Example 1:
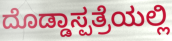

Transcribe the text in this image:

ದೊಡ್ಡಾಸ್ಪತ್ರೆಯಲ್ಲಿ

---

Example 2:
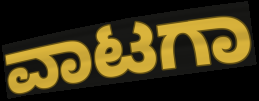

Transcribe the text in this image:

ವಾಟಗಾ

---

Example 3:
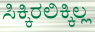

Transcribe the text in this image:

ಸಿಕ್ಕಿರಲಿಕ್ಕಿಲ್ಲ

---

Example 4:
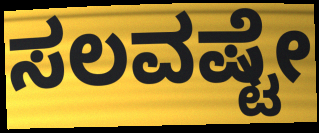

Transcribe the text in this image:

ಸಲವಷ್ಟೇ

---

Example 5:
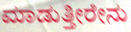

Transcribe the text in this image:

ಮಾಡುತ್ತೀರೇನು